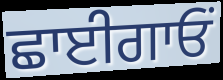
ਛਾਈਗਾਓਂ